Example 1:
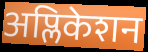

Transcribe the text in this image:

अप्लिकेशन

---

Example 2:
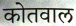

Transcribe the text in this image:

कोतवाल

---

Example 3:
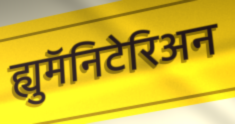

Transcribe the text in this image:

ह्युमॅनिटेरिअन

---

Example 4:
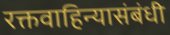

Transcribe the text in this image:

रक्तवाहिन्यासंबंधी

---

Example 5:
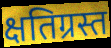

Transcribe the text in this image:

क्षतिग्रस्त